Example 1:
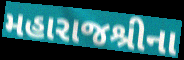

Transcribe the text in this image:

મહારાજશ્રીના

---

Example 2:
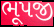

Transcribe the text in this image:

ભૂપજી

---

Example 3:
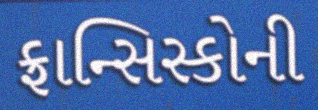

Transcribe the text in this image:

ફ્રાન્સિસ્કોની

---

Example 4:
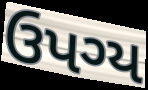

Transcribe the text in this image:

ઉપગ્ય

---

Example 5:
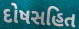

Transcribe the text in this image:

દોષસહિત